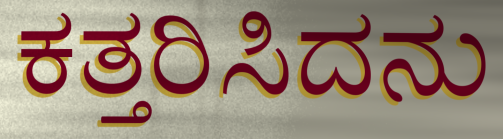
ಕತ್ತರಿಸಿದನು